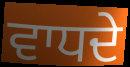
ਵਾਧਦੇ